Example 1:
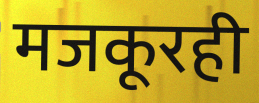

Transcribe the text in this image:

मजकूरही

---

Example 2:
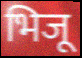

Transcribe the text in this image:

भिजू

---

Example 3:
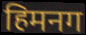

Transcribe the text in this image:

हिमनग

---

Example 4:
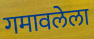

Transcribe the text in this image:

गमावलेला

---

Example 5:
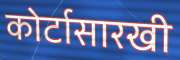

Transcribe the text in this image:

कोर्टासारखी